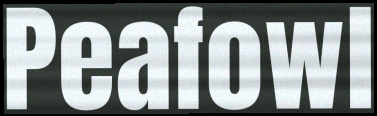
Peafowl